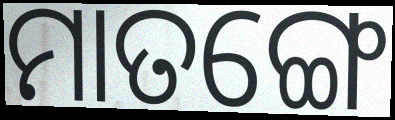
ମାତଙ୍ଗେ